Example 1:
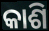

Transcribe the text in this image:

କାଶି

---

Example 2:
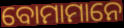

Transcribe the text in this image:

ବୋମାମାନେ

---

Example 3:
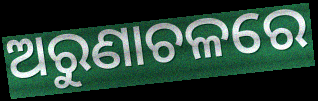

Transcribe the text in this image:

ଅରୁଣାଚଳରେ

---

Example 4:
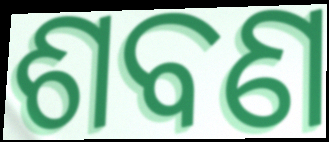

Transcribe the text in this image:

ଶବଣ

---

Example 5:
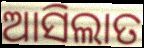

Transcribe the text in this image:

ଆସିଲାତ